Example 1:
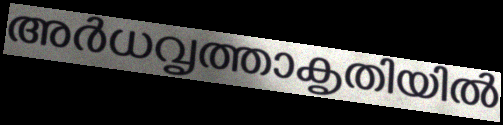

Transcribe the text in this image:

അർധവൃത്താകൃതിയിൽ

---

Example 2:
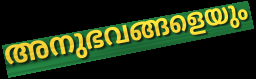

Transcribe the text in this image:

അനുഭവങ്ങളെയും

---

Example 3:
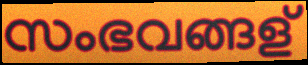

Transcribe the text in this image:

സംഭവങ്ങള്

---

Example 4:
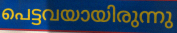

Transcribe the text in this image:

പെട്ടവയായിരുന്നു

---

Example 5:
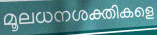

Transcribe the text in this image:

മൂലധനശക്തികളെ